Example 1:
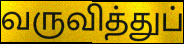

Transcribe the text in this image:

வருவித்துப்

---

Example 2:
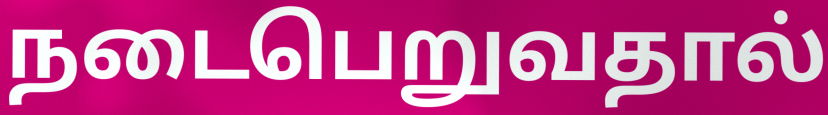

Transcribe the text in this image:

நடைபெறுவதால்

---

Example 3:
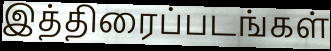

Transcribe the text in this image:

இத்திரைப்படங்கள்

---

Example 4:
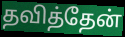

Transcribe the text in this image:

தவித்தேன்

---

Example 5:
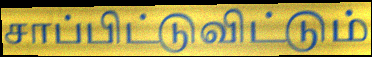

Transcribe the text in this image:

சாப்பிட்டுவிட்டும்